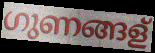
ഗുണങ്ങള്